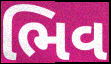
ભિવ